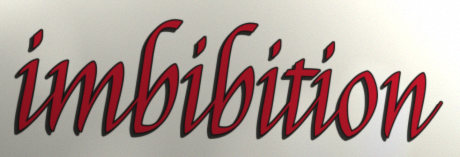
imbibition